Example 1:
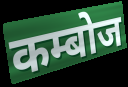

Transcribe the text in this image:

कम्बोज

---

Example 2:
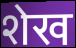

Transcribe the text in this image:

शेख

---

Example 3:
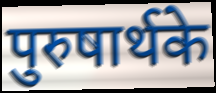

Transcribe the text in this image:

पुरुषार्थके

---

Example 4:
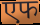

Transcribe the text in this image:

एफ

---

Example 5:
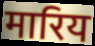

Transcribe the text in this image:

मारिय